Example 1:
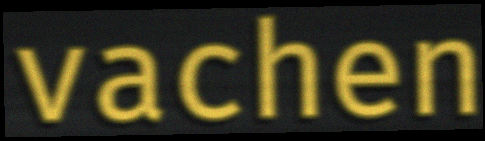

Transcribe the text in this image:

vachen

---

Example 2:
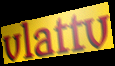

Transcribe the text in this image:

ulattu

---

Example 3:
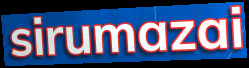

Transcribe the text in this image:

sirumazai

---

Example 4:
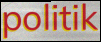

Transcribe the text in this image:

politik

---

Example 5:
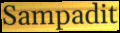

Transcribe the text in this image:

Sampadit